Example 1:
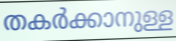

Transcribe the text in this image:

തകർക്കാനുള്ള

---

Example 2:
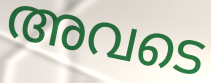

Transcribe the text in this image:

അവടെ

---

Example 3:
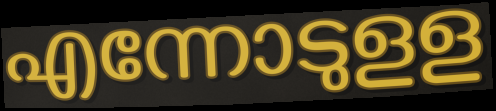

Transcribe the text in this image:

എന്നോടുളള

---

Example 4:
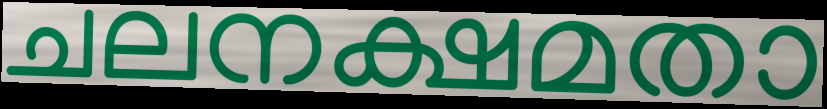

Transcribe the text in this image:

ചലനക്ഷമതാ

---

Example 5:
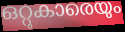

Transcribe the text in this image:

ഒറ്റുകാരെയും